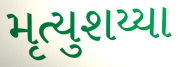
મૃત્યુશય્યા